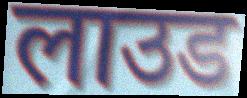
लाउड